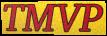
TMVP